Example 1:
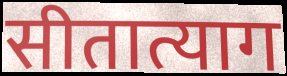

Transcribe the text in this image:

सीतात्याग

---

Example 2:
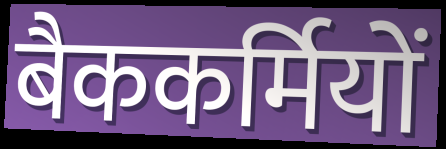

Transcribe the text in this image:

बैककर्मियों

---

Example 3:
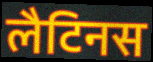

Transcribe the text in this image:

लैटिनस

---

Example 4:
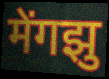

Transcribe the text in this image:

मेंगझु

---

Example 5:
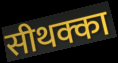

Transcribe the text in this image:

सीथक्का